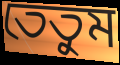
তেতুম